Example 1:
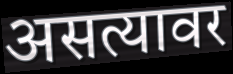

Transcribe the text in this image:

असत्यावर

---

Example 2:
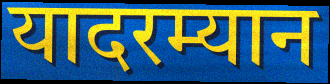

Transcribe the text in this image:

यादरम्यान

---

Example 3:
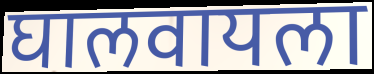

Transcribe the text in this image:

घालवायला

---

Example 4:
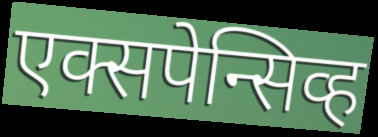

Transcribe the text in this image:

एक्सपेन्सिव्ह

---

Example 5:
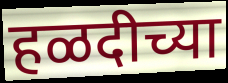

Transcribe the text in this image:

हळदीच्या